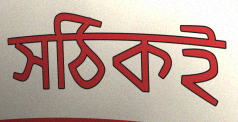
সঠিকই